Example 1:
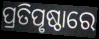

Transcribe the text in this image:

ପ୍ରତିପୃଷ୍ଠାରେ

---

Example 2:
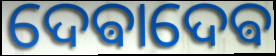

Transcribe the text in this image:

ଦେଵାଦେଵ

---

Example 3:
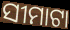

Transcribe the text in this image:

ସୀମାଟା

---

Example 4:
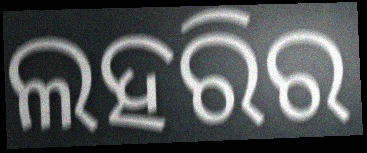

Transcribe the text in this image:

ଲହରିର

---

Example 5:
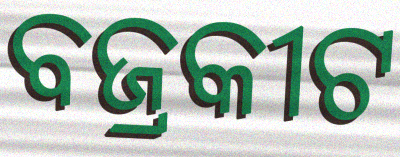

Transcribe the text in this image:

ବଜ୍ରକୀଟ